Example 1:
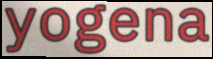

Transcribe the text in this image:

yogena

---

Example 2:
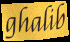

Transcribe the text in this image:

ghalib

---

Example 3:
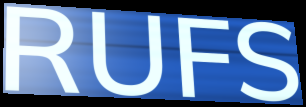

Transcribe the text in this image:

RUFS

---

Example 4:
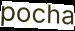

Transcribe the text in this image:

pocha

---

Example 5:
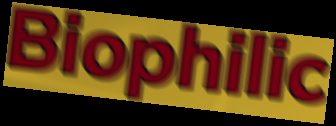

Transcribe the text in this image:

Biophilic